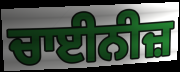
ਚਾਈਨੀਜ਼